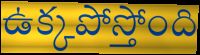
ఉక్కపోస్తోంది